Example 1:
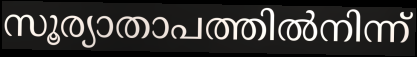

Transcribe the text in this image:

സൂര്യാതാപത്തിൽനിന്ന്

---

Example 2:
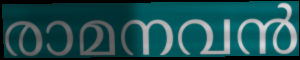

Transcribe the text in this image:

രാമനവൻ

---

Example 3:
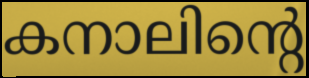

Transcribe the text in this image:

കനാലിന്റെ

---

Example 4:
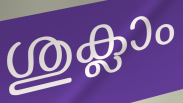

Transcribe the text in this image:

ശുക്ലാം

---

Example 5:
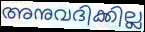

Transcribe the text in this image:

അനുവദിക്കില്ല